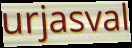
urjasval